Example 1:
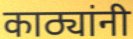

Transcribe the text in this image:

काठ्यांनी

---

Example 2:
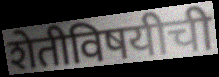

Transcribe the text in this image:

शेतीविषयीची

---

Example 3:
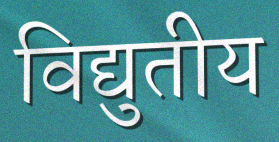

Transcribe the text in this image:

विद्युतीय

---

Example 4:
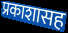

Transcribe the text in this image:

प्रकाशासह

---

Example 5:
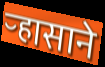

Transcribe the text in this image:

ऱ्हासाने